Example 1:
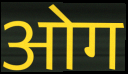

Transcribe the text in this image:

ओग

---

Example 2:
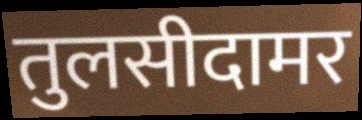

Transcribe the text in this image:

तुलसीदामर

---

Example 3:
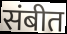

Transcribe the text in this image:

संबीत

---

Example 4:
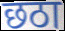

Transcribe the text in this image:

छठा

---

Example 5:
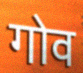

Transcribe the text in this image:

गोव